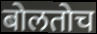
बोलतोच